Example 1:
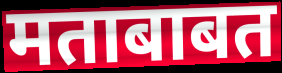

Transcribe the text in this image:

मताबाबत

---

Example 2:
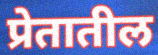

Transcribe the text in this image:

प्रेतातील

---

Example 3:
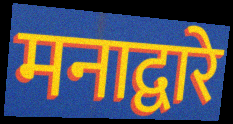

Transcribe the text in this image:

मनाद्वारे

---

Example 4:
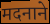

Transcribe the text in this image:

मदनाने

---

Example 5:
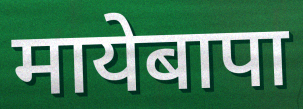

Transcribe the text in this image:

मायेबापा